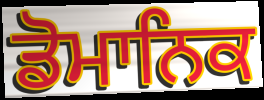
ਡੋਮਾਨਿਕ